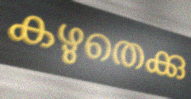
കഴുതെക്കു